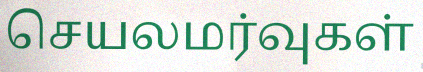
செயலமர்வுகள்